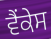
ਵੈਂਕੇਸ